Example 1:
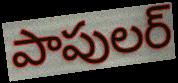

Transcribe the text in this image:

పాపులర్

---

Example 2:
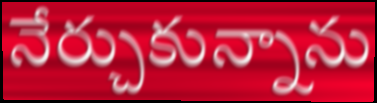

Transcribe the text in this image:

నేర్చుకున్నాను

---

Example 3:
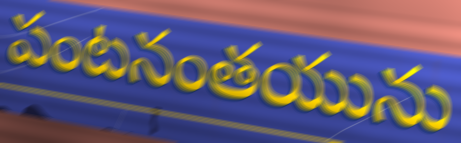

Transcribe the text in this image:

పంటనంతయును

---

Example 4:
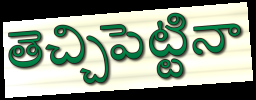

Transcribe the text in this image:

తెచ్చిపెట్టినా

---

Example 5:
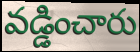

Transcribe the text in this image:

వడ్డించారు